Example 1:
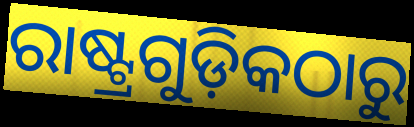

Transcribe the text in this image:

ରାଷ୍ଟ୍ରଗୁଡ଼ିକଠାରୁ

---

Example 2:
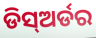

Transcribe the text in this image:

ଡିସ୍ଅର୍ଡର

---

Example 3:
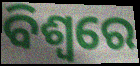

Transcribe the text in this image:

ବିଶ୍ଵରେ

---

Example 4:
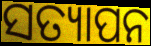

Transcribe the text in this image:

ସତ୍ୟାପନ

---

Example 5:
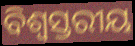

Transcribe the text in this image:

ବିଶ୍ଵସ୍ତରୀୟ